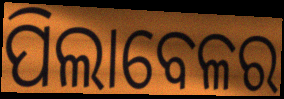
ପିଲାବେଳର